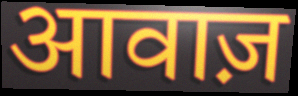
आवाज़